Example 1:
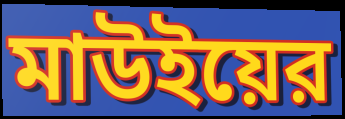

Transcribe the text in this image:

মাউইয়ের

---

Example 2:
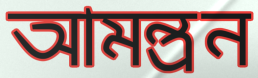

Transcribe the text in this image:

আমন্ত্রন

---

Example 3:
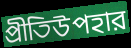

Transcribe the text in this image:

প্রীতিউপহার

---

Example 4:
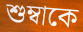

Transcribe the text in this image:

শুম্বাকে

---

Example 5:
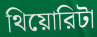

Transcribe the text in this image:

থিয়োরিটা